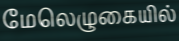
மேலெழுகையில்